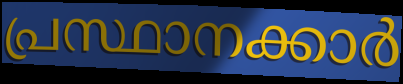
പ്രസ്ഥാനക്കാർ